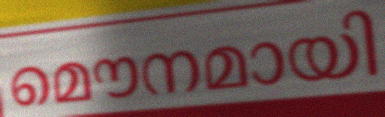
മൌനമായി